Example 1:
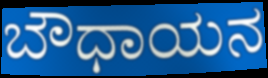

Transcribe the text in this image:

ಬೌಧಾಯನ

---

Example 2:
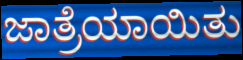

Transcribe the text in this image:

ಜಾತ್ರೆಯಾಯಿತು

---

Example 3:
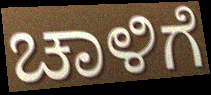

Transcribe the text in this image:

ಚಾಳಿಗೆ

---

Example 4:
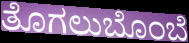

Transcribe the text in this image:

ತೊಗಲುಬೊಂಬೆ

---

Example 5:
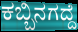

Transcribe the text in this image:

ಕಬ್ಬಿನಗದ್ದೆ